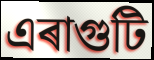
এৰাগুটি